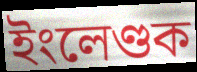
ইংলেণ্ডক